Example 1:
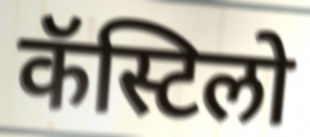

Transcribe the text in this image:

कॅस्टिलो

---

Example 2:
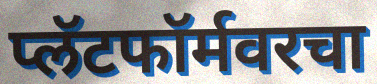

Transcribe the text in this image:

प्लॅटफॉर्मवरचा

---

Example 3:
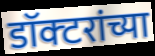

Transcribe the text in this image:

डॉक्‍टरांच्या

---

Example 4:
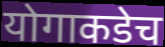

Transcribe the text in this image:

योगाकडेच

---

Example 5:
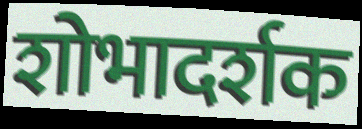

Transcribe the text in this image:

शोभादर्शक